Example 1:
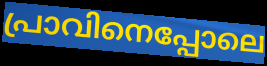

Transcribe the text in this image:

പ്രാവിനെപ്പോലെ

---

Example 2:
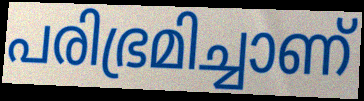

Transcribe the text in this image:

പരിഭ്രമിച്ചാണ്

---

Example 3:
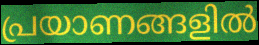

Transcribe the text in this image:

പ്രയാണങ്ങളിൽ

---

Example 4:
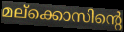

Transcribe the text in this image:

മല്ക്കൊസിന്റെ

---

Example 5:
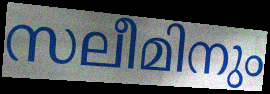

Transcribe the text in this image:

സലീമിനും